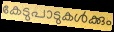
കേടുപാടുകൾക്കും